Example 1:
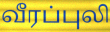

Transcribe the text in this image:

வீரப்புலி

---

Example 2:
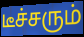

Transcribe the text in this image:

டீச்சரும்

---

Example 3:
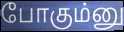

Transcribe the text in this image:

போகும்னு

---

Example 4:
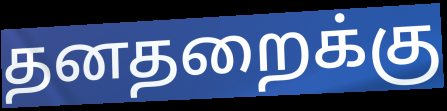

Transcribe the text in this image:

தனதறைக்கு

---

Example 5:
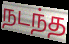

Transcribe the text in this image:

நடந்த